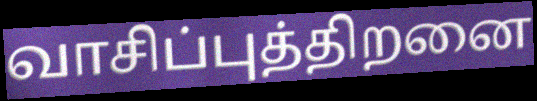
வாசிப்புத்திறனை